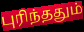
புரிந்ததும்